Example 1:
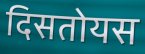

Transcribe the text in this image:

दिसतोयस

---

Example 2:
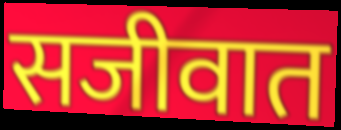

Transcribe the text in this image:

सजीवात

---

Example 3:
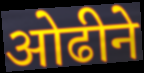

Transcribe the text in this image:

ओढीने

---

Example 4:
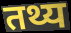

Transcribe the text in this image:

तथ्य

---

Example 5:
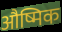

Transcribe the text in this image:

औष्मिक